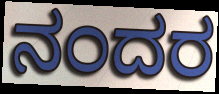
ನಂದರ